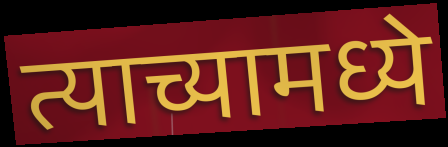
त्याच्यामध्ये